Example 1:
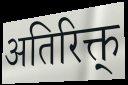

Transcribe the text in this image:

अतिरिक्त्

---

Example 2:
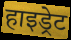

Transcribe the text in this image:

हाइड्रेट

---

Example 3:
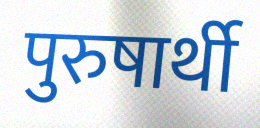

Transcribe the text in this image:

पुरुषार्थी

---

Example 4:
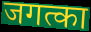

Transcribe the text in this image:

जगत्का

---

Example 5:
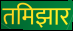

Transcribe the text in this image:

तमिझार